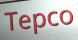
Tepco